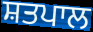
ਸ਼ਤਪਾਲ